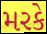
મરકે